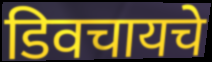
डिवचायचे